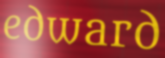
edward